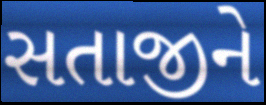
સતાજીને